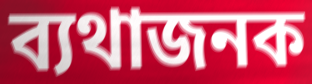
ব্যথাজনক